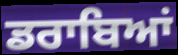
ਡਰਾਬਿਆਂ